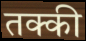
तक्की